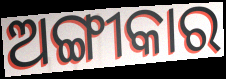
ଅଙ୍ଗୀକାର